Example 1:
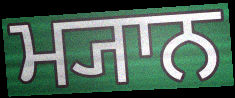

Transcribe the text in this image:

ਮ੍ਯਾਨ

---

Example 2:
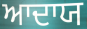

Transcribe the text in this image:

ਆਦਾਯ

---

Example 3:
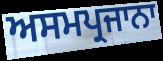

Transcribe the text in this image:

ਅਸਮਪ੍ਰਜਾਨਾ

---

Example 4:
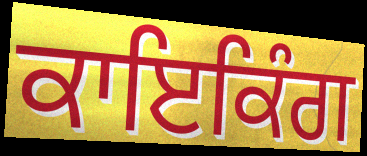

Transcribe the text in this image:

ਕਾਇਕਿੰਗ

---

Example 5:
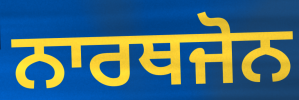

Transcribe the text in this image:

ਨਾਰਥਜੋਨ